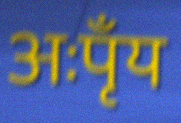
अःपृँय